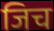
जिच